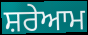
ਸ਼ਰੇਆਮ